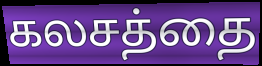
கலசத்தை